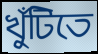
খুঁটিতে